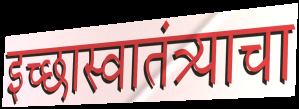
इच्छास्वातंत्र्याचा